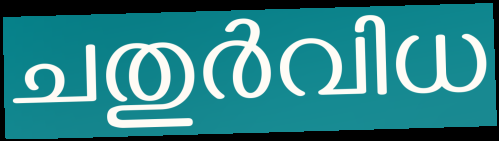
ചതുർവിധ